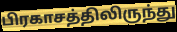
பிரகாசத்திலிருந்து